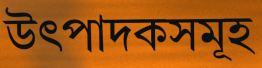
উৎপাদকসমূহ